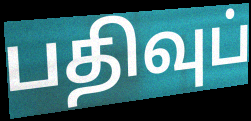
பதிவுப்